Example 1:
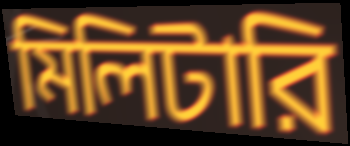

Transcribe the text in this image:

মিলিটারি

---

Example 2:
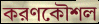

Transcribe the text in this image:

করণকৌশল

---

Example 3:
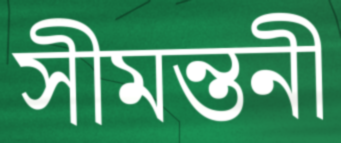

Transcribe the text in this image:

সীমন্তনী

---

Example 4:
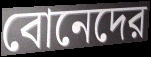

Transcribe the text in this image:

বোনেদের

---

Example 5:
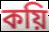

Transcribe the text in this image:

কয়ি